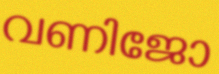
വണിജോ